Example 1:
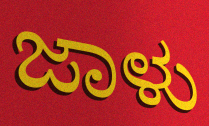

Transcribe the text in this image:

ಜಾಳು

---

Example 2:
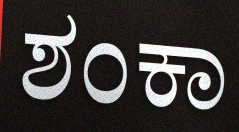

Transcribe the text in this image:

ಶಂಕಾ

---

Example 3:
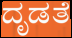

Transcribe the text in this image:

ದೃಡತೆ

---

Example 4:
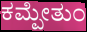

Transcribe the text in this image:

ಕಮ್ಪೇತುಂ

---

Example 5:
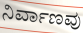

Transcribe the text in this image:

ನಿರ್ವಾಣವು